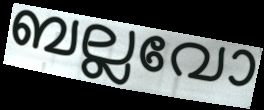
ബല്ലവോ